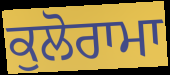
ਕੁਲੋਰਾਮਾ